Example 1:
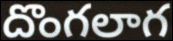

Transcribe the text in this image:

దొంగలాగ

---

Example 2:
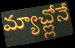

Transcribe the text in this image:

మ్యాచ్ల్లోనే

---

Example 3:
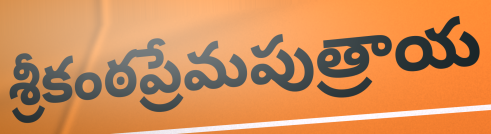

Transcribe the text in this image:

శ్రీకంఠప్రేమపుత్రాయ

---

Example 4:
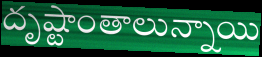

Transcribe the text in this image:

దృష్టాంతాలున్నాయి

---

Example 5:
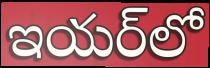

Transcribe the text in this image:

ఇయర్‌లో